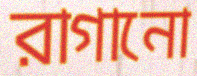
রাগানো